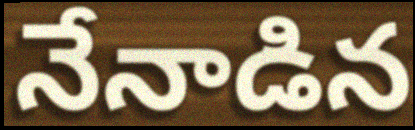
నేనాడిన